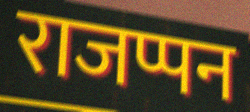
राजप्पन